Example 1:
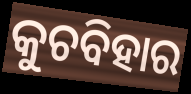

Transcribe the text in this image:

କୁଚବିହାର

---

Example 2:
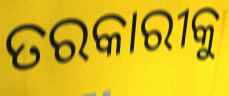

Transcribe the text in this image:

ତରକାରୀକୁ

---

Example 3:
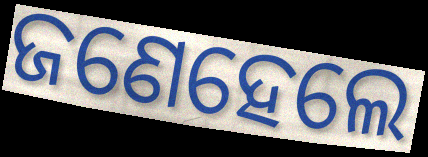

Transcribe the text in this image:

ଜଣେହେଲେ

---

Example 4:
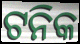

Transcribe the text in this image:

ଟନିକ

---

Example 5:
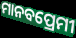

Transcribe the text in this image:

ମାନବପ୍ରେମୀ